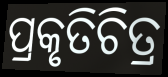
ପ୍ରକୃତିଚିତ୍ର